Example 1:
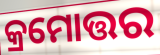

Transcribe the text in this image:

କ୍ରମୋତ୍ତର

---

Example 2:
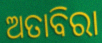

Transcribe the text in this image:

ଅତାବିରା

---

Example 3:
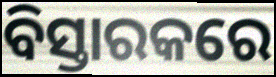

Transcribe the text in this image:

ବିସ୍ତାରକରେ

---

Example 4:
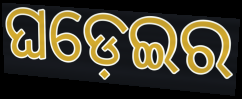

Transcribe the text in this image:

ଘଡ଼େଇର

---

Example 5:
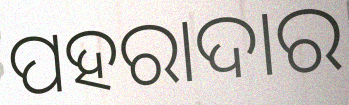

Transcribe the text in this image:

ପହରାଦାର